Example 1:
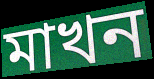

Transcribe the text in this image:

মাখন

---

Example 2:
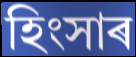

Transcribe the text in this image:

হিংসাৰ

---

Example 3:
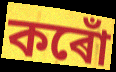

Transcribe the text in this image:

কৰোঁ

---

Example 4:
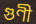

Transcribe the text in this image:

গুণী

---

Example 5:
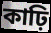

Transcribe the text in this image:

কাঢ়ি